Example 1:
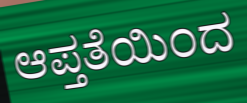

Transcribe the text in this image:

ಆಪ್ತತೆಯಿಂದ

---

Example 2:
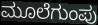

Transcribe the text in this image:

ಮೂಲೆಗುಂಪು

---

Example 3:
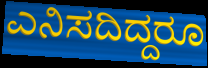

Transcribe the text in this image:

ಎನಿಸದಿದ್ದರೂ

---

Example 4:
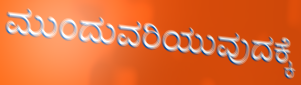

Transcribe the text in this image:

ಮುಂದುವರಿಯುವುದಕ್ಕೆ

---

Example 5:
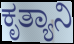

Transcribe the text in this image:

ಕೃತ್ಯಾನಿ